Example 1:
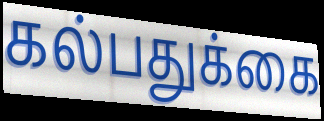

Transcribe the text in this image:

கல்பதுக்கை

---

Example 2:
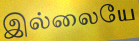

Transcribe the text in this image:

இல்லையே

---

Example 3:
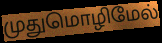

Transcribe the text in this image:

முதுமொழிமேல்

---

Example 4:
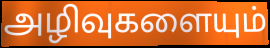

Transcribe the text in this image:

அழிவுகளையும்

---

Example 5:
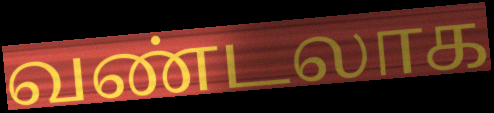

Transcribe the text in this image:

வண்டலாக